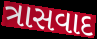
ત્રાસવાદ